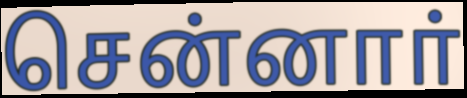
சென்னார்